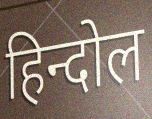
हिन्दोल